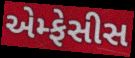
એમ્ફેસીસ